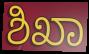
ಶಿಖಾ